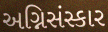
અગ્નિસંસ્કાર